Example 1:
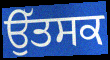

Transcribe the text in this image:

ਉੱਤਸਕ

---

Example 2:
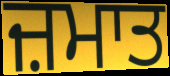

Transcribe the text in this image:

ਜ਼ਮਾਤ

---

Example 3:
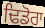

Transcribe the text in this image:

ਢਿਡੋਰਾ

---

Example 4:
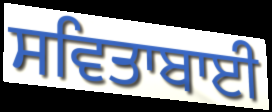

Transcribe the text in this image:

ਸਵਿਤਾਬਾਈ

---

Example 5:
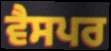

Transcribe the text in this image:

ਵੈਸਪਰ